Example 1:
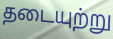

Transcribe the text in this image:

தடையுற்று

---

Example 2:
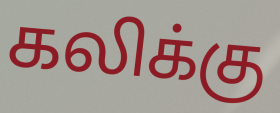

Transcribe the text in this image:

கலிக்கு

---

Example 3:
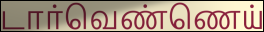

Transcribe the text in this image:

டார்வெண்ணெய்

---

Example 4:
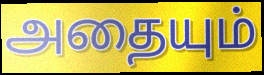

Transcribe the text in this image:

அதையும்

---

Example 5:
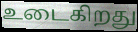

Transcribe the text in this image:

உடைகிறது